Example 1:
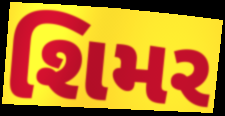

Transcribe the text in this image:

શિમર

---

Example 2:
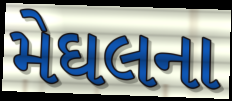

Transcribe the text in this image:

મેઘલના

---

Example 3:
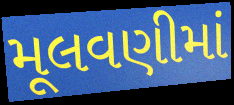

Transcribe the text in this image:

મૂલવણીમાં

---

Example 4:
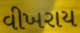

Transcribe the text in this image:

વીખરાય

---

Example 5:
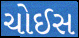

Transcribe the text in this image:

ચોઈસ